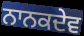
ਨਾਨਕਦੇਵ